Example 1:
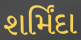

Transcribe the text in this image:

શર્મિંદા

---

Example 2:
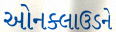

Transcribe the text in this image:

ઓનક્લાઉડને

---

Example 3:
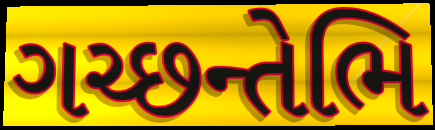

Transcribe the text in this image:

ગચ્છન્તેભિ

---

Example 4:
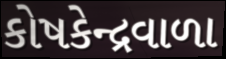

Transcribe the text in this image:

કોષકેન્દ્રવાળા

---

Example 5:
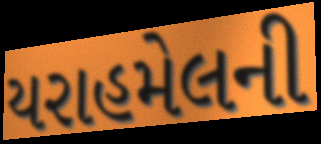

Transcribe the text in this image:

યરાહમેલની